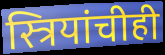
स्त्रियांचीही